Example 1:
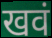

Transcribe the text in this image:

खवं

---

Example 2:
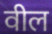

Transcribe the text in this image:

वील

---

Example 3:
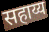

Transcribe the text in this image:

सहाय्य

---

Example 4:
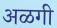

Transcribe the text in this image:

अळगी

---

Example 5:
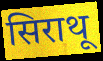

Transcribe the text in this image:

सिराथू